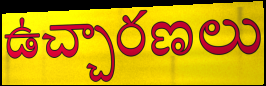
ఉచ్చారణలు